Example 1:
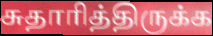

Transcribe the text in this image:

சுதாரித்திருக்க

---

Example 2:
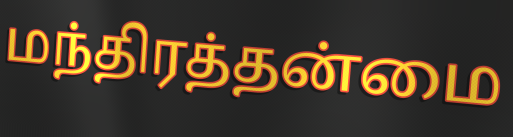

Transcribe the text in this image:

மந்திரத்தன்மை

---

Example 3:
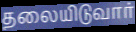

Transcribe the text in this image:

தலையிடுவார்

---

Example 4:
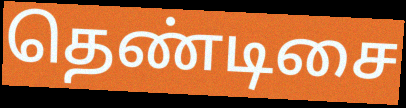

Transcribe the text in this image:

தெண்டிசை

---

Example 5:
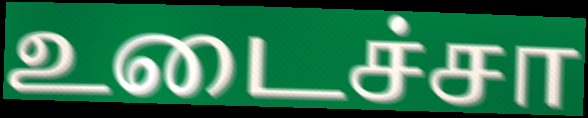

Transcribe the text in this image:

உடைச்சா